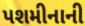
પશમીનાની